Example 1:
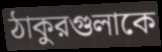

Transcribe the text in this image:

ঠাকুরগুলাকে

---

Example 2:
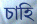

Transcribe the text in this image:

চাহি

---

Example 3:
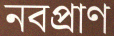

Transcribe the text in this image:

নবপ্রাণ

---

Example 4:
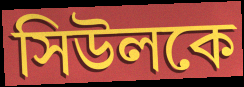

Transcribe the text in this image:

সিউলকে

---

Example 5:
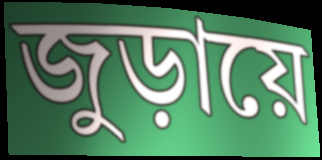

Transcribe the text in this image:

জুড়ায়ে